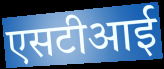
एसटीआई